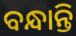
ବନ୍ଧାନ୍ତି